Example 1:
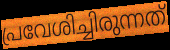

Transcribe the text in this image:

പ്രവേശിച്ചിരുന്നത്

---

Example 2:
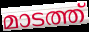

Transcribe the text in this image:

മാടത്ത്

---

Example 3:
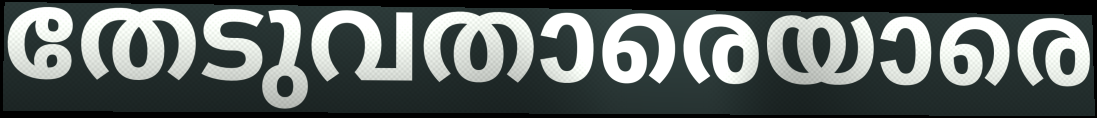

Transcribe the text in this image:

തേടുവതാരെയാരെ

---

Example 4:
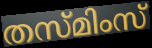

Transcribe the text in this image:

തസ്മിംസ്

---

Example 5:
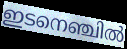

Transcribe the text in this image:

ഇടനെഞ്ചിൽ